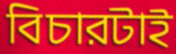
বিচারটাই